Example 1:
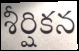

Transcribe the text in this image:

శీర్షికన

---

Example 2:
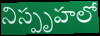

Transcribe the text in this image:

నిస్పృహలో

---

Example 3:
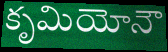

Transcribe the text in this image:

కృమియోనౌ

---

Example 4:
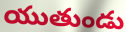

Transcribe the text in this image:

యుతుండు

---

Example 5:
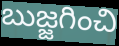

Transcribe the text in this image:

బుజ్జగించి